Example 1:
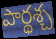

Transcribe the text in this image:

పార్థశ్చ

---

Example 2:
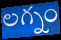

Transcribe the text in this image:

లగ్నం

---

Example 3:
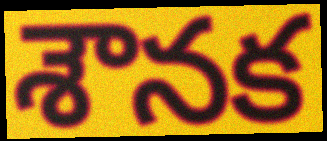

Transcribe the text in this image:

శౌనక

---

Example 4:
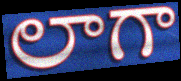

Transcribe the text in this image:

లాగా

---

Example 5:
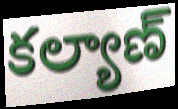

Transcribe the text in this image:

కల్యాణ్